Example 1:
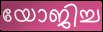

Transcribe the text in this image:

യോജിച്ച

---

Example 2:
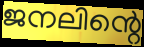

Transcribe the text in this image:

ജനലിന്റെ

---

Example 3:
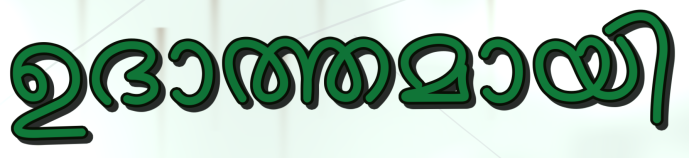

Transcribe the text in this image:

ഉദാത്തമായി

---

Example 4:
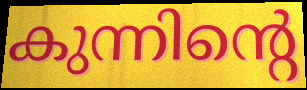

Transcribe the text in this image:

കുന്നിന്റെ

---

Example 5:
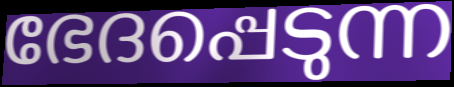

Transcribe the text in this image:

ഭേദപ്പെടുന്ന